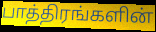
பாத்திரங்களின்